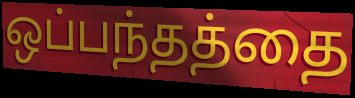
ஒப்பந்தத்தை